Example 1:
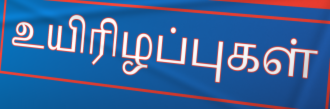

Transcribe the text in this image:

உயிரிழப்புகள்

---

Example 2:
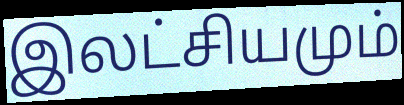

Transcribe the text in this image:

இலட்சியமும்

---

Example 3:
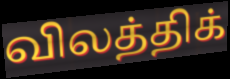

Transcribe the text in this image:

விலத்திக்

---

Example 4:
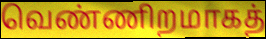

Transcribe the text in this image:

வெண்ணிறமாகத்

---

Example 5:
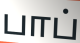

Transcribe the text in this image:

பாப்